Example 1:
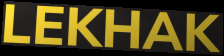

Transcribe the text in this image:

LEKHAK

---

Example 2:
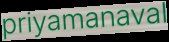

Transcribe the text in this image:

priyamanaval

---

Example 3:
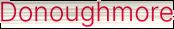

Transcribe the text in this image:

Donoughmore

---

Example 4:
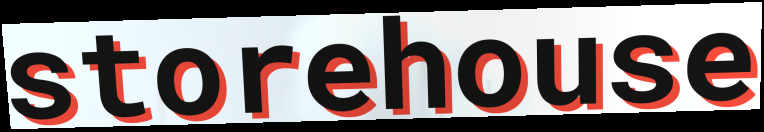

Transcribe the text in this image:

storehouse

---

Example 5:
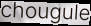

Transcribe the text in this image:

chougule